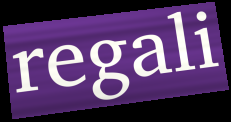
regali